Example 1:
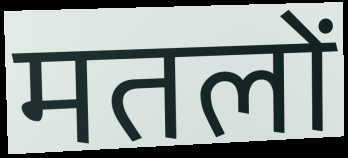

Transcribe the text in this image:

मतलों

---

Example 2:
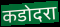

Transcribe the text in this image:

कडोदरा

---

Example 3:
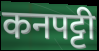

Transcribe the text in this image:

कनपट्टी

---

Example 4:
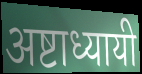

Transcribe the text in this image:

अष्टाध्यायी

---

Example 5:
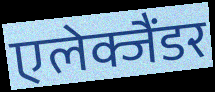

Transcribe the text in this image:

एलेक्जैंडर